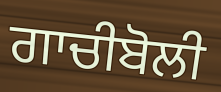
ਗਾਚੀਬੋਲੀ